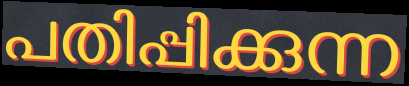
പതിപ്പിക്കുന്ന